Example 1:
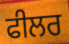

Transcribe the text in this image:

ਫੀਲਰ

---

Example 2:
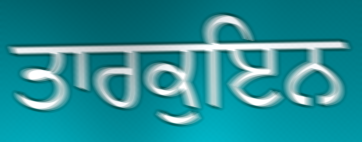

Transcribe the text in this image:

ਤਾਰਕੁਇਨ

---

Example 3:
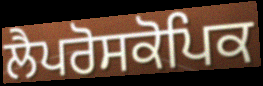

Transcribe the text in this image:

ਲੈਪਰੋਸਕੋਪਿਕ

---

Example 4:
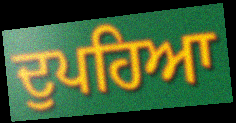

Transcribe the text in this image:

ਦੁਪਹਿਆ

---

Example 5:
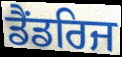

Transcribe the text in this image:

ਡੈਂਡਰਿਜ